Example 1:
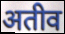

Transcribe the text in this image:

अतीव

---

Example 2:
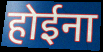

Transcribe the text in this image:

होईना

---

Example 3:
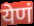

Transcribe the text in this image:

येणं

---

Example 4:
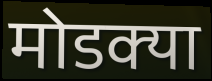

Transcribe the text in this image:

मोडक्या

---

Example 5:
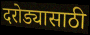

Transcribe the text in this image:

दरोड्यासाठी